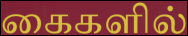
கைகளில்